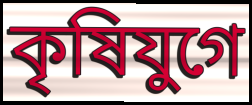
কৃষিযুগে